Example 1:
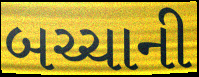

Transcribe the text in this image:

બચ્ચાની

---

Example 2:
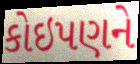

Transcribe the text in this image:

કોઇપણને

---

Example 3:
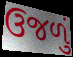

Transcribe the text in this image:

ઉજળું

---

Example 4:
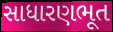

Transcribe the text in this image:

સાધારણભૂત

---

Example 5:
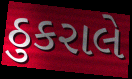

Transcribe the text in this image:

ઠુકરાલે